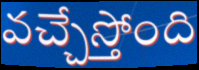
వచ్చేస్తోంది